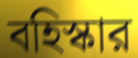
বহিস্কার